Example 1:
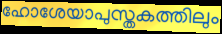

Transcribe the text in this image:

ഹോശേയാപുസ്തകത്തിലും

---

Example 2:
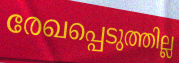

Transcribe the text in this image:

രേഖപ്പെടുത്തില്ല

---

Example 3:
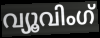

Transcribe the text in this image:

വ്യൂവിംഗ്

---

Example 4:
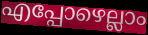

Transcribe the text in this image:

എപ്പോഴെല്ലാം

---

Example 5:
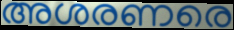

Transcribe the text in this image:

അശരണരെ